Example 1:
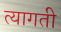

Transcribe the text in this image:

त्यागती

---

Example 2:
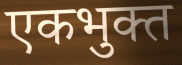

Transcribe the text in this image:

एकभुक्त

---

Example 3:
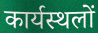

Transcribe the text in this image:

कार्यस्थलों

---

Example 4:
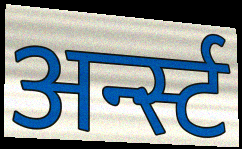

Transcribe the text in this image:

अर्न्स्ट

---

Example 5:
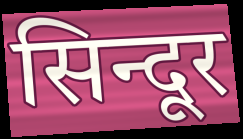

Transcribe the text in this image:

सिन्दूर